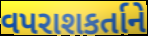
વપરાશકર્તાને